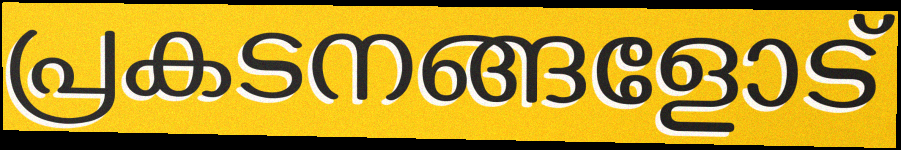
പ്രകടനങ്ങളോട്